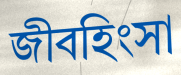
জীবহিংসা